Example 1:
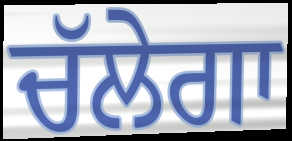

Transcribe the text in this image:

ਚੱਲੇਗਾ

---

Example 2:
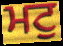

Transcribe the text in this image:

ਮਟੁ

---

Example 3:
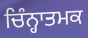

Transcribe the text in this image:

ਚਿੰਨ੍ਹਾਤਮਕ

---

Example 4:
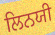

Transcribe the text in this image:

ਲਿਨਯੀ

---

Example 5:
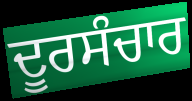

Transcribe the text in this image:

ਦੂਰਸੰਚਾਰ